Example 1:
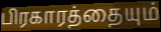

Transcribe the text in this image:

பிரகாரத்தையும்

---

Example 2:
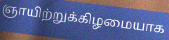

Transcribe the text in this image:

ஞாயிற்றுக்கிழமையாக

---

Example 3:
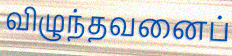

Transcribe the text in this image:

விழுந்தவனைப்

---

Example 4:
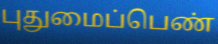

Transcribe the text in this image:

புதுமைப்பெண்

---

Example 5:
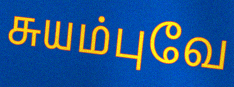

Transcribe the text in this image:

சுயம்புவே